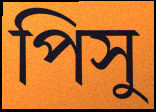
পিসু